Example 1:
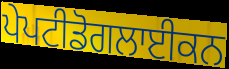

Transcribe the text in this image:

ਪੇਪਟੀਡੋਗਲਾਈਕਨ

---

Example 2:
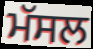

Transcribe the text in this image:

ਮੱਸਲ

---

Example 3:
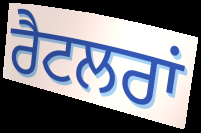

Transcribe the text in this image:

ਰੈਟਲਰਾਂ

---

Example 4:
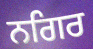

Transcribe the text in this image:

ਨਗਿਰ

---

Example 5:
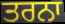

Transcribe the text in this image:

ਤਰਨਾ